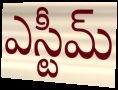
ఎస్టీమ్